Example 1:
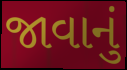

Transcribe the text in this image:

જાવાનું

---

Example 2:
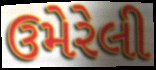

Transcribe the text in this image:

ઉમેરેલી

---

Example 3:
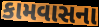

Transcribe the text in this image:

કામવાસના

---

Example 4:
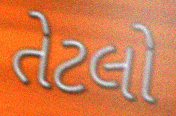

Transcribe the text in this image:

તેટલો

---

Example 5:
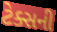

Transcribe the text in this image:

ટેક્સની